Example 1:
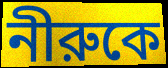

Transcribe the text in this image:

নীরুকে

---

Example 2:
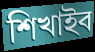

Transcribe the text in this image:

শিখাইব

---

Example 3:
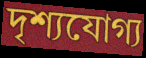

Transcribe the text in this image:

দৃশ্যযোগ্য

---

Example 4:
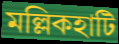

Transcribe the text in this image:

মল্লিকহাটি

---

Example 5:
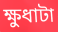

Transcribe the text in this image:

ক্ষুধাটা